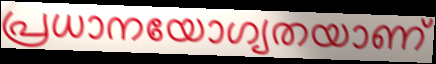
പ്രധാനയോഗ്യതയാണ്